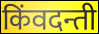
किंवदन्ती